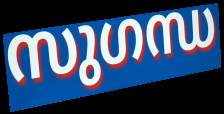
സുഗന്ധ